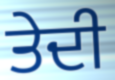
ਤੇਦੀ